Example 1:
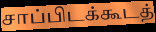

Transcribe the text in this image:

சாப்பிடக்கூடத்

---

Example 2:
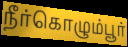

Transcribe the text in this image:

நீர்கொழும்பூர்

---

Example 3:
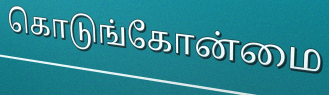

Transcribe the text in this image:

கொடுங்கோன்மை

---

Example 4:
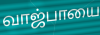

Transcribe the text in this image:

வாஜ்பாயை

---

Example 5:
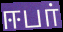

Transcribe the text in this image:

ஈபர்